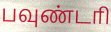
பவுண்டரி